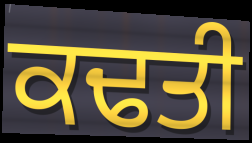
ਕਢਤੀ